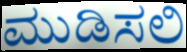
ಮುಡಿಸಲಿ